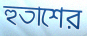
হুতাশের